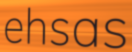
ehsas